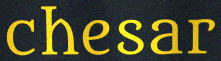
chesar